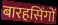
बारहसिंगों